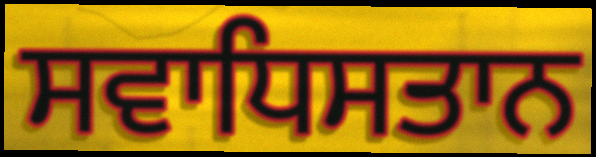
ਸਵਾਧਿਸਤਾਨ